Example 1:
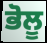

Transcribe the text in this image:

ਭੋਲੂ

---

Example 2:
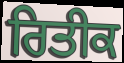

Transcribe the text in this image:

ਰਿਤੀਕ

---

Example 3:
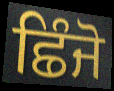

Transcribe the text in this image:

ਛਿੰਜੋ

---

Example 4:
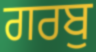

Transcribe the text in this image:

ਗਰਬੁ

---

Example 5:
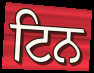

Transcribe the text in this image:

ਟਿਨ